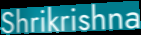
Shrikrishna